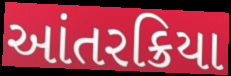
આંતરક્રિયા